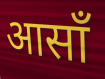
आसाँ